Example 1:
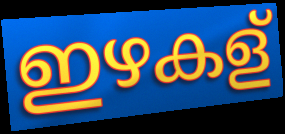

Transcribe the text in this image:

ഇഴകള്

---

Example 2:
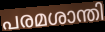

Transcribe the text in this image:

പരമശാന്തി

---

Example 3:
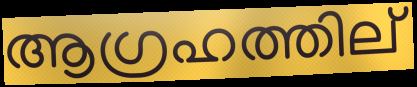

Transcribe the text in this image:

ആഗ്രഹത്തില്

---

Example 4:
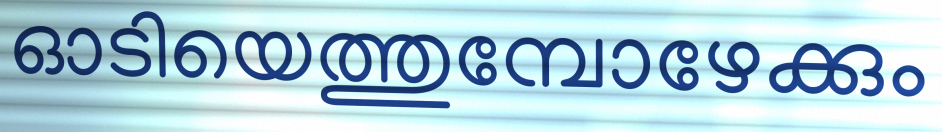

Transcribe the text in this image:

ഓടിയെത്തുമ്പോഴേക്കും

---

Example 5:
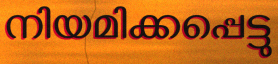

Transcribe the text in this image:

നിയമിക്കപ്പെട്ടു